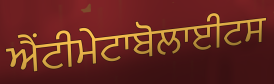
ਐਂਟੀਮੇਟਾਬੋਲਾਈਟਸ